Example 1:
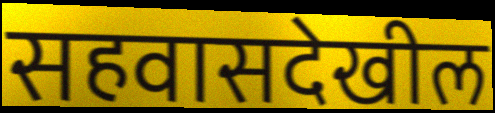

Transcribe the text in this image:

सहवासदेखील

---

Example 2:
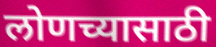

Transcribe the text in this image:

लोणच्यासाठी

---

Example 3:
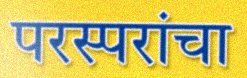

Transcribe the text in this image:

परस्परांचा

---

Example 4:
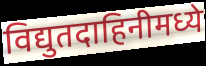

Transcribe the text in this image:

विद्युतदाहिनीमध्ये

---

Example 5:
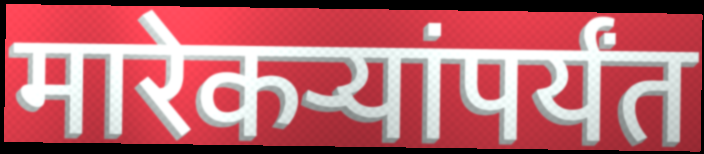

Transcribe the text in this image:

मारेकऱ्यांपर्यंत